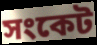
সংকেট